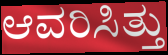
ಆವರಿಸಿತ್ತು